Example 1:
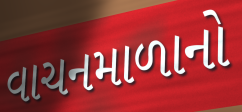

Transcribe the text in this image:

વાચનમાળાનો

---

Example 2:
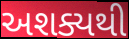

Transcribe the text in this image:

અશક્યથી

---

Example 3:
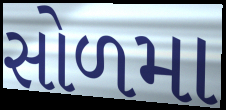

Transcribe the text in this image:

સોળમા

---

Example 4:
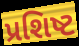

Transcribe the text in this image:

પ્રશિષ્ટ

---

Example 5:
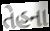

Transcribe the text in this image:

તેહના